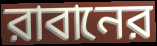
রাবানের